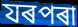
যৰপৰা